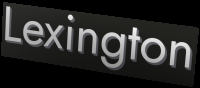
Lexington